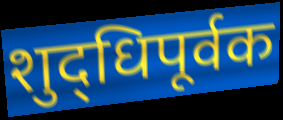
शुद्धिपूर्वक